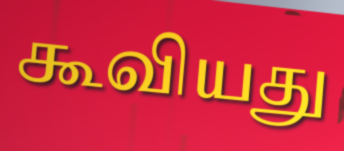
கூவியது